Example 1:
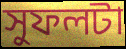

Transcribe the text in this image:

সুফলটা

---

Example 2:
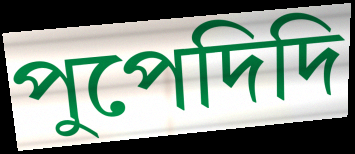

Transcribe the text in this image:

পুপেদিদি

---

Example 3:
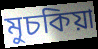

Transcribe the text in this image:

মুচকিয়া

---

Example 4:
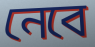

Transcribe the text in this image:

নেবে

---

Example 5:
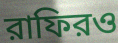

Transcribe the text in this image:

রাফিরও